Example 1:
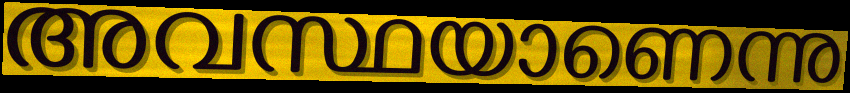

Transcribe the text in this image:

അവസ്ഥയാണെന്നു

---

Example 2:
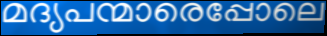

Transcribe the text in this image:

മദ്യപന്മാരെപ്പോലെ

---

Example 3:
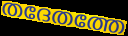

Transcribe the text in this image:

തദേതത്തേ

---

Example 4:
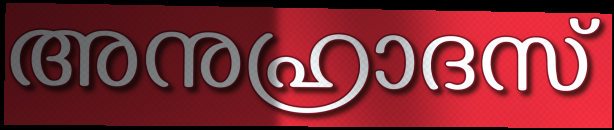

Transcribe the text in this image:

അനുഹ്രാദസ്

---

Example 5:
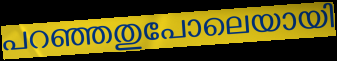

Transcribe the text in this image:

പറഞ്ഞതുപോലെയായി